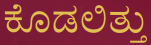
ಕೊಡಲಿತ್ತು